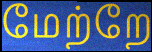
மேற்றே